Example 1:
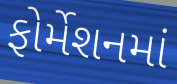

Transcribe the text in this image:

ફોર્મેશનમાં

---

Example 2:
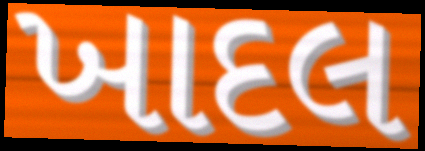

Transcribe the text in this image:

ખાદલ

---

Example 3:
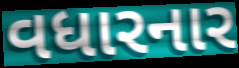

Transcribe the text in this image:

વધારનાર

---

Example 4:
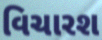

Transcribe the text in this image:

વિચારશ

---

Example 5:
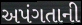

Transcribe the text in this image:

અપંગતાની